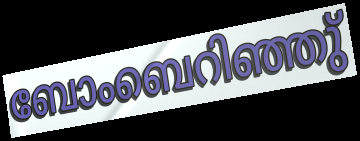
ബോംബെറിഞ്ഞു്